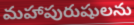
మహాపురుషులను